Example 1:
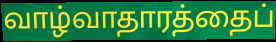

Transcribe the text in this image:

வாழ்வாதாரத்தைப்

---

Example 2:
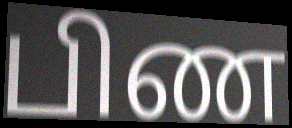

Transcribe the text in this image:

பிண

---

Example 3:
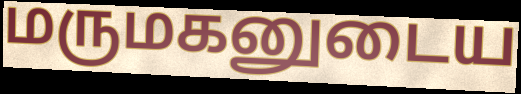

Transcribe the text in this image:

மருமகனுடைய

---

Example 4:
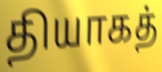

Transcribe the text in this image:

தியாகத்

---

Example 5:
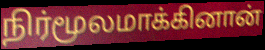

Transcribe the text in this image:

நிர்மூலமாக்கினான்